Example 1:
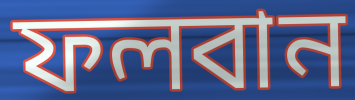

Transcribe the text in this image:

ফলবান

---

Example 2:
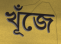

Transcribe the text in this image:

খূঁজে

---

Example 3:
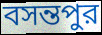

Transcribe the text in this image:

বসন্তপুর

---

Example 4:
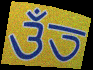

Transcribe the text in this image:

ওঁত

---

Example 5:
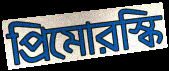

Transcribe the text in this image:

প্রিমোরস্কি